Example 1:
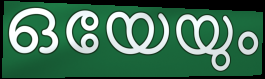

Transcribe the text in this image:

ഒയേയും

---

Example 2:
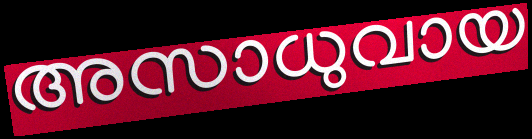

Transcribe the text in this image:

അസാധുവായ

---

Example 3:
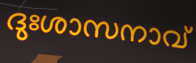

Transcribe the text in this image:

ദുഃശാസനാവ്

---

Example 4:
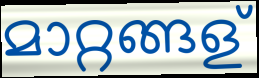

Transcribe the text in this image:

മാറ്റങ്ങള്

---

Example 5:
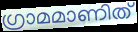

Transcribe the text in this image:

ഗ്രാമമാണിത്